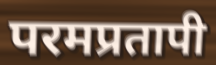
परमप्रतापी